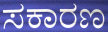
ಸಕಾರಣ